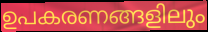
ഉപകരണങ്ങളിലും